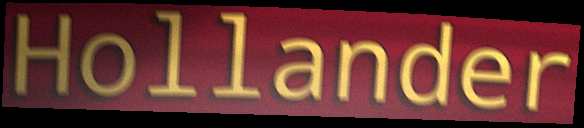
Hollander